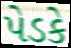
પેડકે